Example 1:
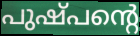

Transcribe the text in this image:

പുഷ്പന്റെ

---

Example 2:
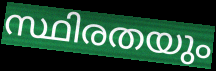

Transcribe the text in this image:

സ്ഥിരതയും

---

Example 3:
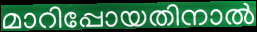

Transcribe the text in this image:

മാറിപ്പോയതിനാൽ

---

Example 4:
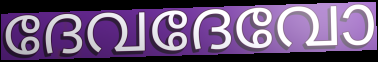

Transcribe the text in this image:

ദേവദേവോ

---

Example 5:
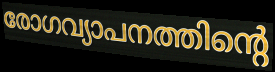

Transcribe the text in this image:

രോഗവ്യാപനത്തിന്റെ